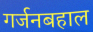
गर्जनबहाल